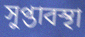
সুপ্তাবস্থা